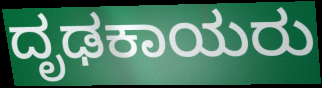
ದೃಢಕಾಯರು